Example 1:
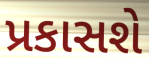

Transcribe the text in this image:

પ્રકાસશે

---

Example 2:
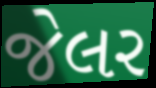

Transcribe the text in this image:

જેલર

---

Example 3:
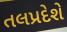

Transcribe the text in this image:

તલપ્રદેશે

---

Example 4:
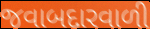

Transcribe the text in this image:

જવાબદારવાળી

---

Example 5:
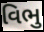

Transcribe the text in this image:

વિભુ